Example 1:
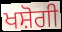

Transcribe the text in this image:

ਖਸ਼ੋਗੀ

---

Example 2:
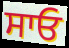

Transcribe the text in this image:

ਸਾਓ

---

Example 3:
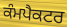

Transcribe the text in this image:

ਕੰਮਪੈਕਟਰ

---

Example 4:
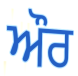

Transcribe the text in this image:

ਔਰ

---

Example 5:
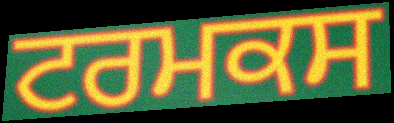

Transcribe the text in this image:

ਟਰਮਕਸ